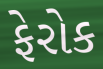
ફેરોક